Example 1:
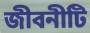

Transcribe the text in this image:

জীবনীটি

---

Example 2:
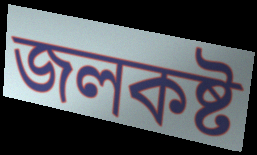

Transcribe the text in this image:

জলকষ্ট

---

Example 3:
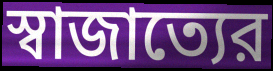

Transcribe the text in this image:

স্বাজাত্যের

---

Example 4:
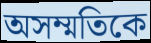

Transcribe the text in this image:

অসম্মতিকে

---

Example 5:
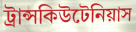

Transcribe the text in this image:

ট্রান্সকিউটেনিয়াস